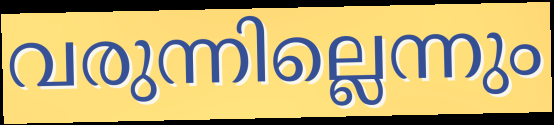
വരുന്നില്ലെന്നും